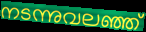
നടന്നുവലഞ്ഞ്